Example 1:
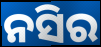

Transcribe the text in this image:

ନସିର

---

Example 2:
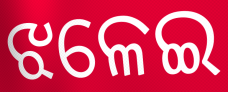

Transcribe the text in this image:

ଝଳେଇ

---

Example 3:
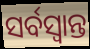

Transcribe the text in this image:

ସର୍ବସ୍ୱାନ୍ତ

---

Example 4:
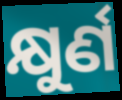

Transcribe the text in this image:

କ୍ଷୁର୍ଣ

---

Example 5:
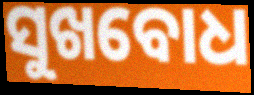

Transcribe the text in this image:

ସୁଖବୋଧ